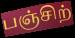
பஞ்சிற்